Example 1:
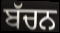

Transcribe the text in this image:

ਬੱਚਨ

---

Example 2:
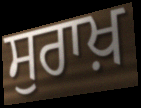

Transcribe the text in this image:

ਸੁਰਾਖ਼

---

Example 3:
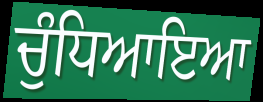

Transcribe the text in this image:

ਚੁੰਧਿਆਇਆ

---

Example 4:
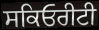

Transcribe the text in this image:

ਸਕਿਓਰੀਟੀ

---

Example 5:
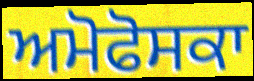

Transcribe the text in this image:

ਅਮੋਫੋਸਕਾ